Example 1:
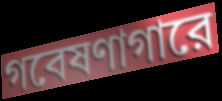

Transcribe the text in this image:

গবেষণাগারে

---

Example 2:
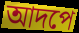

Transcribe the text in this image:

আদপে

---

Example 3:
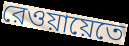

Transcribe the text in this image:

রেওয়ায়েতে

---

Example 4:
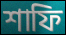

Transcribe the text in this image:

শাফি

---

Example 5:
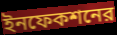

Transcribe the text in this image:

ইনফেকশনের